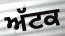
ਅੱਟਕ